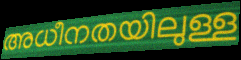
അധീനതയിലുള്ള